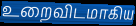
உறைவிடமாகிய